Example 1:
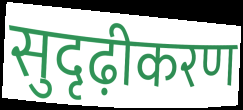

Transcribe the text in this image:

सुदृढ़ीकरण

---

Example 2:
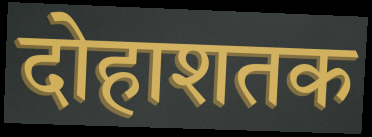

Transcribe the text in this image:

दोहाशतक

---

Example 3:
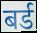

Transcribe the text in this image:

बर्ड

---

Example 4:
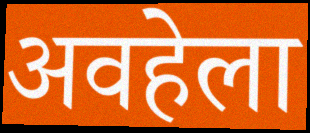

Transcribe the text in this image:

अवहेला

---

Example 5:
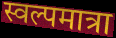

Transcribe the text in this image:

स्वल्पमात्रा